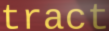
tract